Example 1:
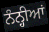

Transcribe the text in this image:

ਨੰਨ੍ਹੀਆਂ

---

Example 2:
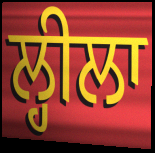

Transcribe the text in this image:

ਲ੍ਹੀਲਾ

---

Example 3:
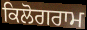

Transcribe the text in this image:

ਕਿਲੋਗਰਾਮ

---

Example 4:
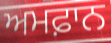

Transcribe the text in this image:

ਅਮਫ਼ਾਨ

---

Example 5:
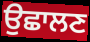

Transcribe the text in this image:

ਉਛਾਲਣ